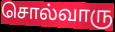
சொல்வாரு